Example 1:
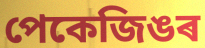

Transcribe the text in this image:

পেকেজিঙৰ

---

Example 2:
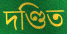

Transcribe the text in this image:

দণ্ডিত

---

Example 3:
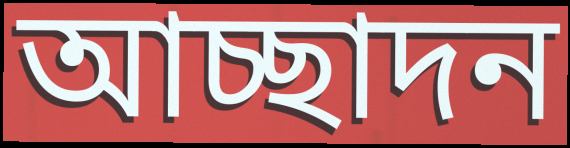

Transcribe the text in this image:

আচ্ছাদন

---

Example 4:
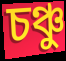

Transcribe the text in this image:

চঞ্চু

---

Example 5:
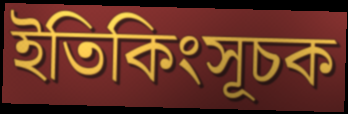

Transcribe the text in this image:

ইতিকিংসূচক